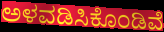
ಅಳವಡಿಸಿಕೊಂಡಿವೆ